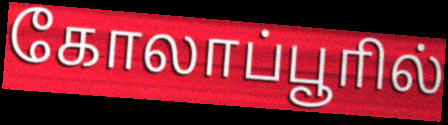
கோலாப்பூரில்